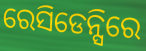
ରେସିଡେନ୍ସିରେ